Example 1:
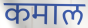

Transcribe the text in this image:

कमाल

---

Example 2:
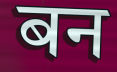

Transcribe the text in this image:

बन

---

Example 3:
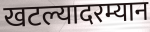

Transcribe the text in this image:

खटल्यादरम्यान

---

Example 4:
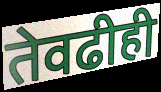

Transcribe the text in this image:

तेवढीही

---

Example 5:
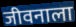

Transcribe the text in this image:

जीवनाला